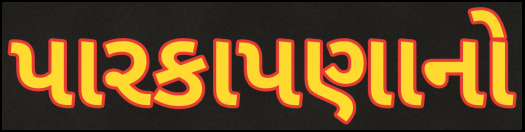
પારકાપણાનો